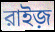
রাইজ়